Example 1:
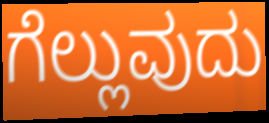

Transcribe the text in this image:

ಗೆಲ್ಲುವುದು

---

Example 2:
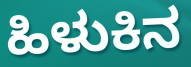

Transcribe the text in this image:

ಹಿಳುಕಿನ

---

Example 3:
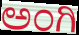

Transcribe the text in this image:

ಅಂಗಿ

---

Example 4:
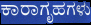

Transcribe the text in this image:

ಕಾರಾಗೃಹಗಳು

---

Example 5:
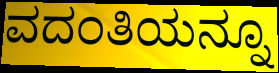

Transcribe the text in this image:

ವದಂತಿಯನ್ನೂ